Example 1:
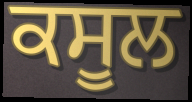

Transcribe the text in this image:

ਕਸੂਲ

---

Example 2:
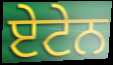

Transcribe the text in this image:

ਏਟੇਨ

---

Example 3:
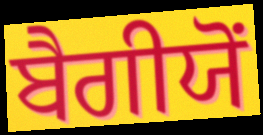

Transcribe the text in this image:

ਬੈਗੀਯੋਂ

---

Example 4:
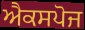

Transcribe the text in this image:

ਐਕਸਪੋਜ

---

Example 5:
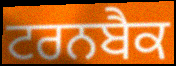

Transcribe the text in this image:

ਟਰਨਬੈਕ